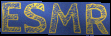
ESMR